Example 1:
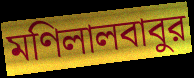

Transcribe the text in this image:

মণিলালবাবুর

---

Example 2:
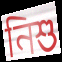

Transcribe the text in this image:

নিশু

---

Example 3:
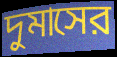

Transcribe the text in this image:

দুমাসের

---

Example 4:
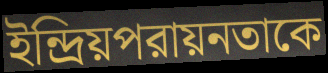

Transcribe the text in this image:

ইন্দ্রিয়পরায়নতাকে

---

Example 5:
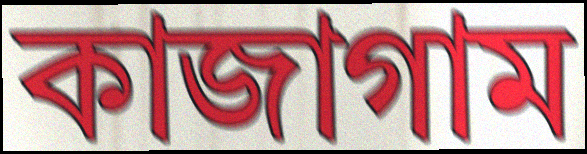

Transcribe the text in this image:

কাজাগাম